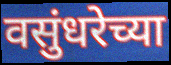
वसुंधरेच्या